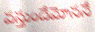
వస్తుందేమోననే